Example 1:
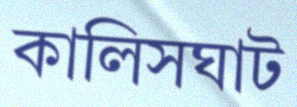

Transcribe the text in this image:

কালিসঘাট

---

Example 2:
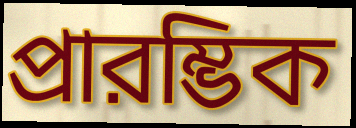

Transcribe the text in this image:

প্রারম্ভিক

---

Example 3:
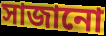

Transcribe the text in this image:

সাজানো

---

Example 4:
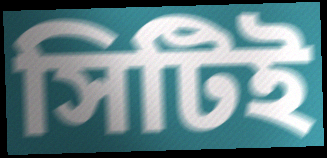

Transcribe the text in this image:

সিটিই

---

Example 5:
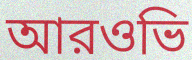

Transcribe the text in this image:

আরওভি